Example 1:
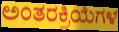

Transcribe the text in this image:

ಅಂತರಕ್ರಿಯೆಗಳ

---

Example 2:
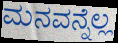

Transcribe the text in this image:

ಮನವನ್ನೆಲ್ಲ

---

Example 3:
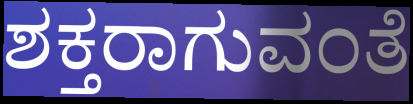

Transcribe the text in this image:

ಶಕ್ತರಾಗುವಂತೆ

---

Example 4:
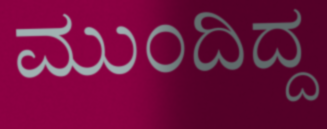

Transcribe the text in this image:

ಮುಂದಿದ್ದ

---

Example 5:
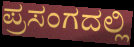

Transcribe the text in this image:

ಪ್ರಸಂಗದಲ್ಲಿ